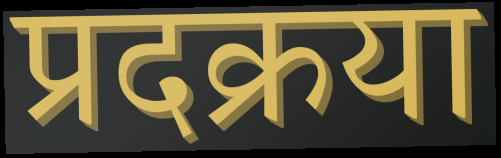
प्रदक्रया